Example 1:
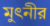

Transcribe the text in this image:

মুৎনীর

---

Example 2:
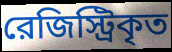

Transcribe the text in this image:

রেজিস্ট্রিকৃত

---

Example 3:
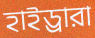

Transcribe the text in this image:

হাইড্রারা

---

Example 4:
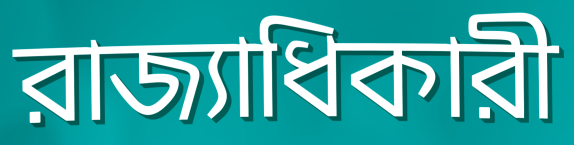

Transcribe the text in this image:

রাজ্যাধিকারী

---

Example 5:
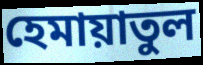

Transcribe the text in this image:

হেমায়াতুল